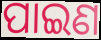
ପାଇଣ